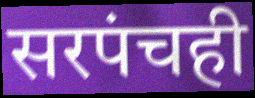
सरपंचही